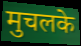
मुचलके